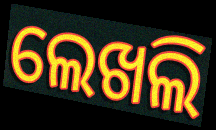
ଲେଖଲି